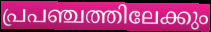
പ്രപഞ്ചത്തിലേക്കും